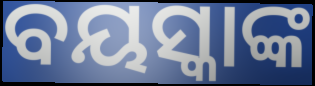
ବୟସ୍କାଙ୍କ